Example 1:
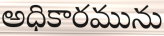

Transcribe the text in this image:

అధికారమును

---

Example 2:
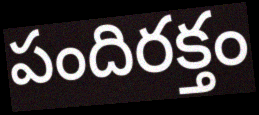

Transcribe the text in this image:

పందిరక్తం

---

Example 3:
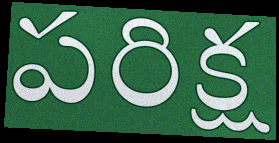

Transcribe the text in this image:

పరిక్ష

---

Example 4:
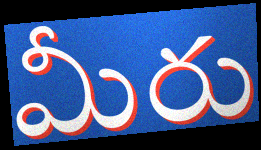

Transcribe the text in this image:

మీరు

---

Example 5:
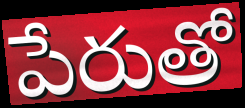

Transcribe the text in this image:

పేరుతో